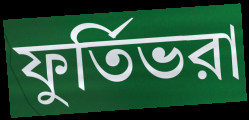
ফুর্তিভরা